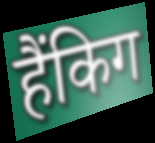
हैंकिग